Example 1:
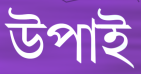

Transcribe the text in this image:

উপাই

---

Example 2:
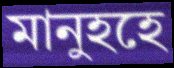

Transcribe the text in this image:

মানুহহে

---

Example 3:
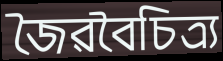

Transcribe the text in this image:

জৈৱবৈচিত্ৰ্য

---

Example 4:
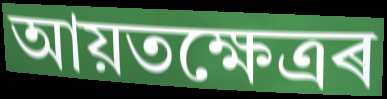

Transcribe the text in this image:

আয়তক্ষেত্ৰৰ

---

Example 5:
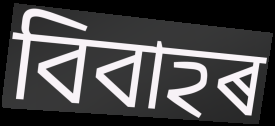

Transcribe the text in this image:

বিবাহৰ